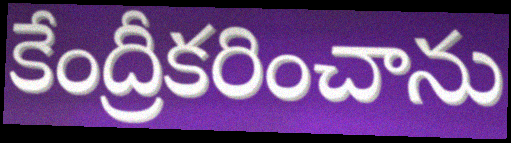
కేంద్రీకరించాను